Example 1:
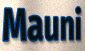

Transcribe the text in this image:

Mauni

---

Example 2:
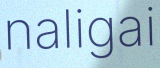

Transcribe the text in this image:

naligai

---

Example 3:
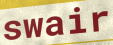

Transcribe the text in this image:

swair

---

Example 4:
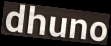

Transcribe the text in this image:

dhuno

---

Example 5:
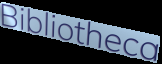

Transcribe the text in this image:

Bibliotheca